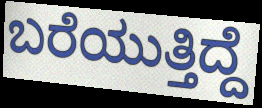
ಬರೆಯುತ್ತಿದ್ದೆ